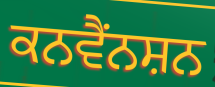
ਕਨਵੈਂਨਸ਼ਨ